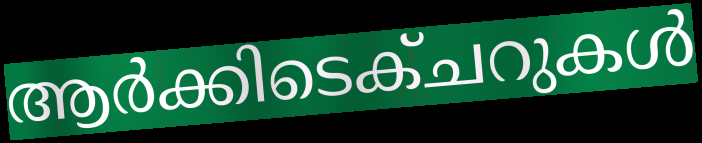
ആർക്കിടെക്ചറുകൾ